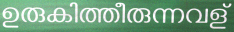
ഉരുകിത്തീരുന്നവള്